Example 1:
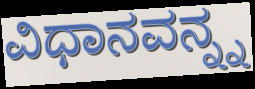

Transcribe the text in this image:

ವಿಧಾನವನ್ನ್ನ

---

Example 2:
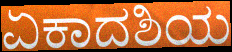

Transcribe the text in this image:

ಏಕಾದಶಿಯ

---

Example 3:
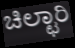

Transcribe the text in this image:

ಚಿಲ್ಟಾರಿ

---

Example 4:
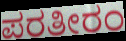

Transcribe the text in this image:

ಪರತೀರಂ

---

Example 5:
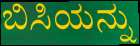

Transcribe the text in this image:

ಬಿಸಿಯನ್ನು